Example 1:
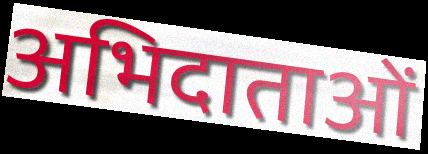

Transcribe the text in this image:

अभिदाताओं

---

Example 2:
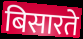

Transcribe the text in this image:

बिसारते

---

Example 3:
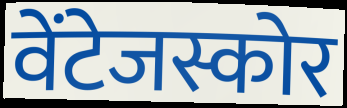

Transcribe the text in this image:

वेंटेजस्कोर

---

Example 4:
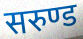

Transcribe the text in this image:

सरुण्ड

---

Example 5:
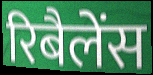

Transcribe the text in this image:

रिबैलेंस